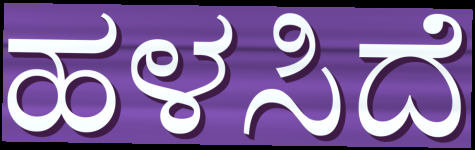
ಹಳಸಿದೆ